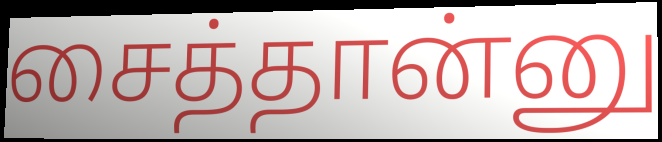
சைத்தான்னு